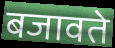
बजावते